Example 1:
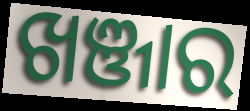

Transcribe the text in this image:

ଖଞ୍ଜାର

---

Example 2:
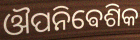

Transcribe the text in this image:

ଔପନିଵେଶିକ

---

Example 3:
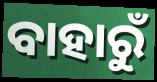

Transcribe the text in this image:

ବାହାରୁଁ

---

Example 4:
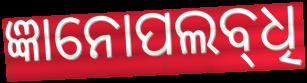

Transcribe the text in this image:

ଜ୍ଞାନୋପଲବ୍‌ଧି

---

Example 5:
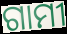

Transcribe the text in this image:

ଗାମୀ